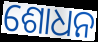
ଶୋଧନ